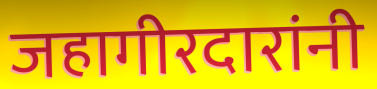
जहागीरदारांनी